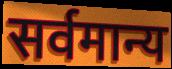
सर्वमान्य